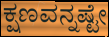
ಕ್ಷಣವನ್ನಷ್ಟೇ